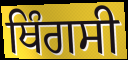
ਥਿੰਗਸੀ